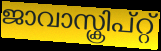
ജാവാസ്ക്രിപ്റ്റ്